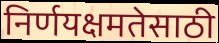
निर्णयक्षमतेसाठी